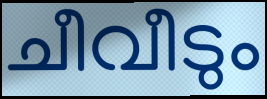
ചീവീടും